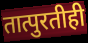
तात्पुरतीही